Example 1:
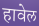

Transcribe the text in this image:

हावेल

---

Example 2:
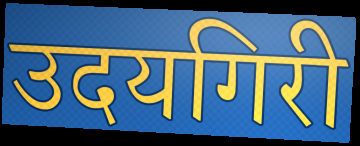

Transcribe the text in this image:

उदयगिरी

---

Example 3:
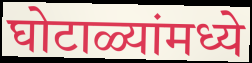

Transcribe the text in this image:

घोटाळ्यांमध्ये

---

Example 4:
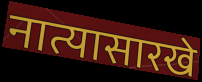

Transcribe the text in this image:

नात्यासारखे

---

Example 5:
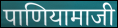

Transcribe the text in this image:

पाणियामाजी